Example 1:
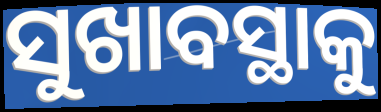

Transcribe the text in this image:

ସୁଖାବସ୍ଥାକୁ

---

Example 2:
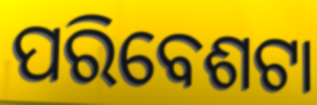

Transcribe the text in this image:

ପରିବେଶଟା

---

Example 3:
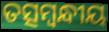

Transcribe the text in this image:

ତତ୍ସମ୍ବନ୍ଧୀୟ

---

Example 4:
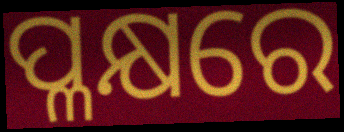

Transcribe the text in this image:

ପ୍ଳକ୍ଷରେ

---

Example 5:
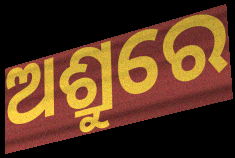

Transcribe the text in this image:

ଅଶ୍ରୁରେ